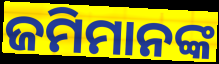
ଜମିମାନଙ୍କ